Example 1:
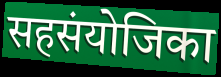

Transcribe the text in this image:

सहसंयोजिका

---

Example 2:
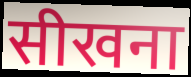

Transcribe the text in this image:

सीखना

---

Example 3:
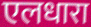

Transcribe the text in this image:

एलधारा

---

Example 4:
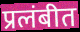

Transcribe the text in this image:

प्रलंबीत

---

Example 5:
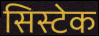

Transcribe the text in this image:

सिस्टेक